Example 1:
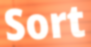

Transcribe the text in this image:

Sort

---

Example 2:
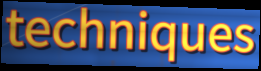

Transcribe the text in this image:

techniques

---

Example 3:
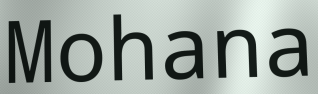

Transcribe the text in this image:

Mohana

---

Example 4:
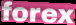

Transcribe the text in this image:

forex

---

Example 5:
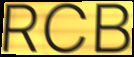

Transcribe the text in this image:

RCB